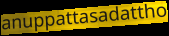
anuppattasadattho